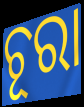
ଚୂରା